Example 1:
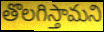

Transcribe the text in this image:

తొలగిస్తామని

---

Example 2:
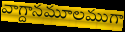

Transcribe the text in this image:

వాగ్దానమూలముగా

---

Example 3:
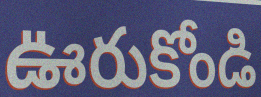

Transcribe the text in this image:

ఊరుకోండి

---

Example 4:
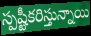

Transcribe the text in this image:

స్పష్టీకరిస్తున్నాయి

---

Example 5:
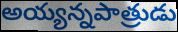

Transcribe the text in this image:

అయ్యన్నపాత్రుడు